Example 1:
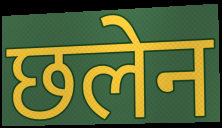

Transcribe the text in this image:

छलेन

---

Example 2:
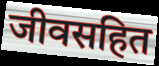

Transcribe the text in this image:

जीवसहित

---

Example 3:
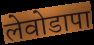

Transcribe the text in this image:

लेवोडापा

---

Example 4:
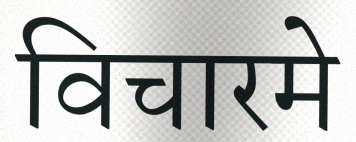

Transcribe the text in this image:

विचारमे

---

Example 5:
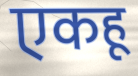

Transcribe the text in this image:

एकहू